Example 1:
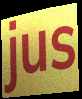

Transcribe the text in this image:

jus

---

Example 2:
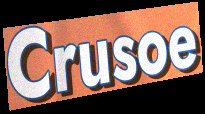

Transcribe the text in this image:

Crusoe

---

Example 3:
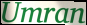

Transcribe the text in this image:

Umran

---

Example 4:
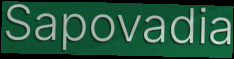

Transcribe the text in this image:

Sapovadia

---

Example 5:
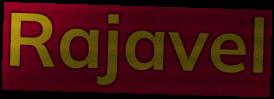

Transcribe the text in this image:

Rajavel